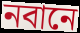
নবানে